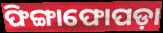
ଫିଙ୍ଗାଫୋପଡ଼ା